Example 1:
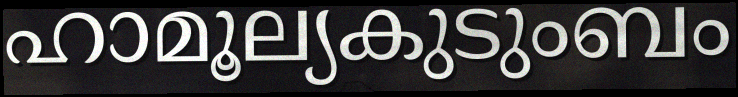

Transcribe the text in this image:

ഹാമൂല്യകുടുംബം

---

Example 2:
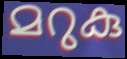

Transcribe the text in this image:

മറുകു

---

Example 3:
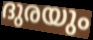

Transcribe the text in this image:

ദുരയും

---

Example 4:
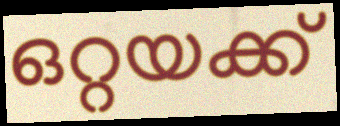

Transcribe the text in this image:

ഒറ്റയക്ക്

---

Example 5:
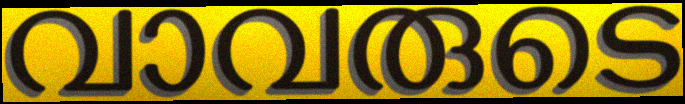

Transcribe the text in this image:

വാവരുടെ